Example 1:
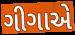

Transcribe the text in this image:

ગીગાએ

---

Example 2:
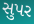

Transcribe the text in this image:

સુપર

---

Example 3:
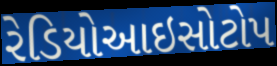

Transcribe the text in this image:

રેડિયોઆઇસોટોપ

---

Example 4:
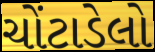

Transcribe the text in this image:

ચોંટાડેલો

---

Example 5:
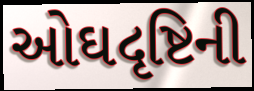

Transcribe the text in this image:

ઓઘદૃષ્ટિની